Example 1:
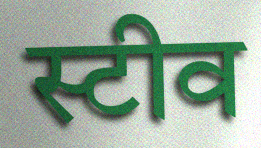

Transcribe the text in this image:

स्‍टीव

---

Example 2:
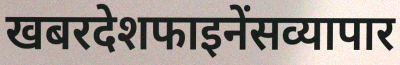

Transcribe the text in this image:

खबरदेशफाइनेंसव्यापार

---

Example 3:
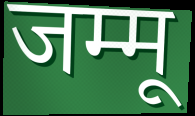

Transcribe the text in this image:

जम्मू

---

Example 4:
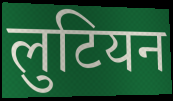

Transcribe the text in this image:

लुटियन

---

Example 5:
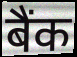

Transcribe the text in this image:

बैंक